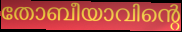
തോബീയാവിന്റെ